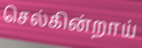
செல்கின்றாய்